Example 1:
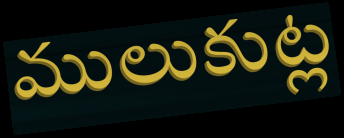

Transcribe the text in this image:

ములుకుట్ల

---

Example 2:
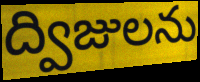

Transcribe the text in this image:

ద్విజులను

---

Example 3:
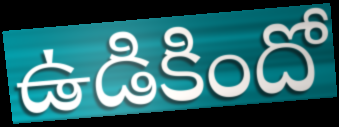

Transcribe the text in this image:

ఉడికిందో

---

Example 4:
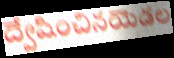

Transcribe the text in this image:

ద్వేషించినయెడల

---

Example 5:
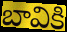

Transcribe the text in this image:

బావికి